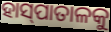
ହାସ୍‍ପାତାଳକୁ